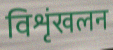
विशृंखलन